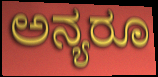
ಅನ್ಯರೂ